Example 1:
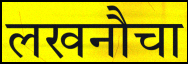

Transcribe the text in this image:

लखनौचा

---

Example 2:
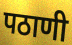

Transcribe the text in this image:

पठाणी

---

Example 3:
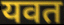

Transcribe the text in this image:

यवत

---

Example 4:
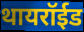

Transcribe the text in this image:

थायरॉईड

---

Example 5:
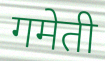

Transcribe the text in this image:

गमेती